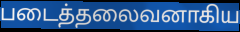
படைத்தலைவனாகிய